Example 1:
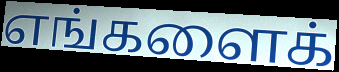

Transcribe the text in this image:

எங்களைக்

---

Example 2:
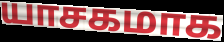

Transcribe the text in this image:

யாசகமாக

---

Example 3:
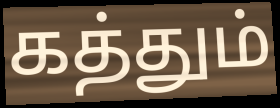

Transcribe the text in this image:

கத்தும்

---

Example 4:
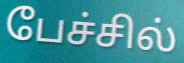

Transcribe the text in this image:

பேச்சில்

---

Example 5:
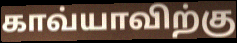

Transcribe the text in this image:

காவ்யாவிற்கு